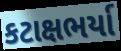
કટાક્ષભર્યા